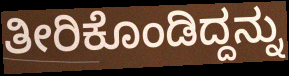
ತೀರಿಕೊಂಡಿದ್ದನ್ನು